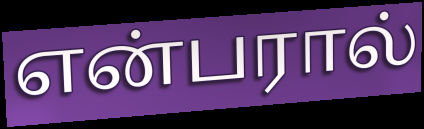
என்பரால்